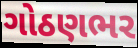
ગોઠણભર